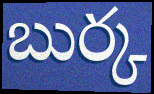
బుర్క